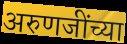
अरुणजींच्या